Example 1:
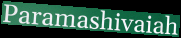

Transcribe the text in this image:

Paramashivaiah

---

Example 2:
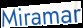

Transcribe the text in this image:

Miramar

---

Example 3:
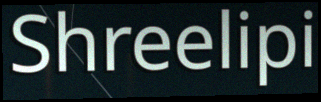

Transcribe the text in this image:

Shreelipi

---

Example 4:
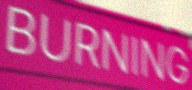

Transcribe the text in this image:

BURNING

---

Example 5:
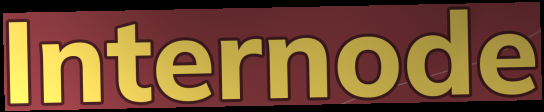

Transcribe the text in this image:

Internode